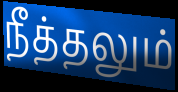
நீத்தலும்